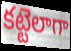
కట్టెలాగా